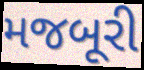
મજબૂરી